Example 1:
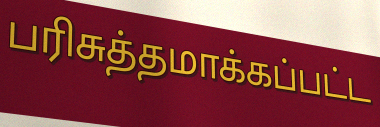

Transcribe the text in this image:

பரிசுத்தமாக்கப்பட்ட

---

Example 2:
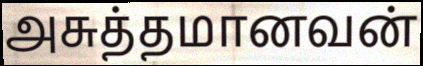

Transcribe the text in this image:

அசுத்தமானவன்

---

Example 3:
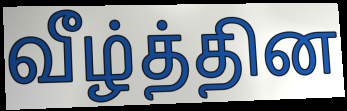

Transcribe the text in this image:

வீழ்த்தின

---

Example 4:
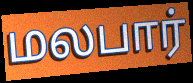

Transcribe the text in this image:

மலபார்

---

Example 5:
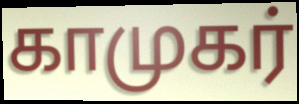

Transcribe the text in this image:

காமுகர்